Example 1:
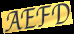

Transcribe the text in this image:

AEFD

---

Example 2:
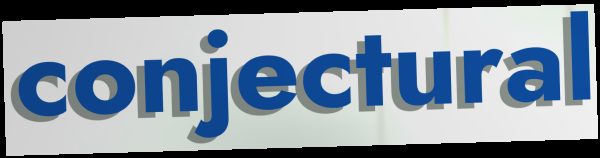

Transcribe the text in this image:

conjectural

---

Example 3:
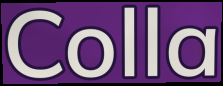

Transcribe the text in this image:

Colla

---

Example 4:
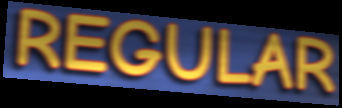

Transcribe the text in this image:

REGULAR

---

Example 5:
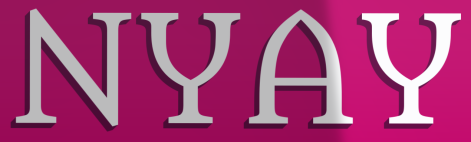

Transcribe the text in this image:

NYAY